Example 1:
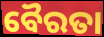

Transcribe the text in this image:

ବୈରତା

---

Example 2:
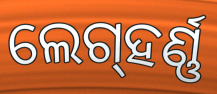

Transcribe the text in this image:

ଲେଗ୍‌ହର୍ଣ୍ଣ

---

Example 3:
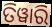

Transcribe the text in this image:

ତିୱାରି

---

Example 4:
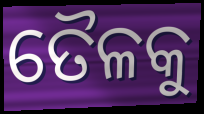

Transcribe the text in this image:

ତୈଳକୁ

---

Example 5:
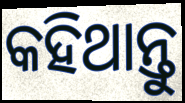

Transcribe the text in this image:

କହିଥାନ୍ତୁ